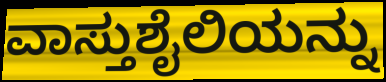
ವಾಸ್ತುಶೈಲಿಯನ್ನು